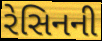
રેસિનની